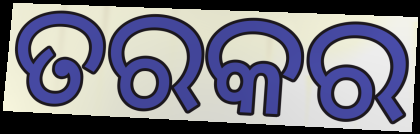
ତରକର